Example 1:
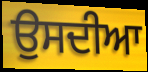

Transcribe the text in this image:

ਉਸਦੀਆ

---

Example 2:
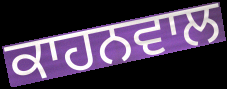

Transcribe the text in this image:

ਕਾਹਨਵਾਲ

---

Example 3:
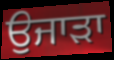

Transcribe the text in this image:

ਉਜਾੜਾ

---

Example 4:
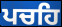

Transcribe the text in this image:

ਪਚਹਿ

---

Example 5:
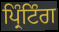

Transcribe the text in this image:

ਪ੍ਰਿੰਟਿੰਗ